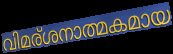
വിമര്ശനാത്മകമായ